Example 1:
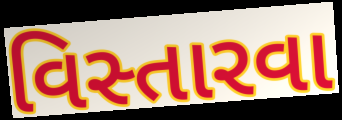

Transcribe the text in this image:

વિસ્તારવા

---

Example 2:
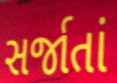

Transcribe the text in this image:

સર્જાતાં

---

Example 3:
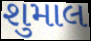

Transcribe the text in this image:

શુમાલ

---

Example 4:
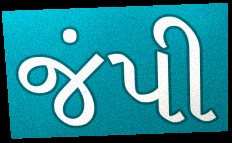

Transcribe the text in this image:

જંપી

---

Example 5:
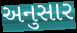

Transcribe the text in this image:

અનુસાર